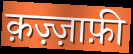
क़ज़्ज़ाफ़ी